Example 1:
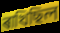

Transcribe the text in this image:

ৰাখিছিল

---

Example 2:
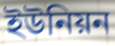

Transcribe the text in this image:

ইউনিয়ন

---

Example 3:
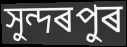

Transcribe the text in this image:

সুন্দৰপুৰ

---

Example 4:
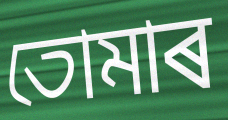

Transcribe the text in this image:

তোমাৰ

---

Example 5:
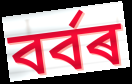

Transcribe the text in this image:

বৰ্বৰ